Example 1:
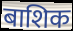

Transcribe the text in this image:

बाशिक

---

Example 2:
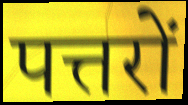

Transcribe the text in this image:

पत्तरों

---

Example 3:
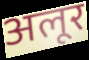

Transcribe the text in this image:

अलूर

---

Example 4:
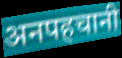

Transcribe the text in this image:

अनपहचानी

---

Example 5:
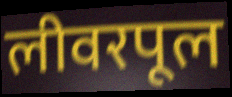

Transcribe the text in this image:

लीवरपूल